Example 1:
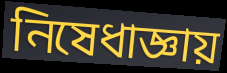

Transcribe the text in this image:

নিষেধাজ্ঞায়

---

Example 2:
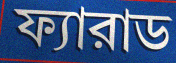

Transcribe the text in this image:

ফ্যারাড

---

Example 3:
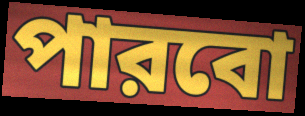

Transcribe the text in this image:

পারবো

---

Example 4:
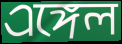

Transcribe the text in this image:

এঙ্গেল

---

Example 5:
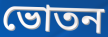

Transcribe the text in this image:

ভোতন